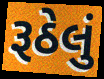
રૂઠેલું